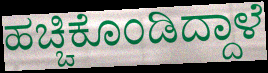
ಹಚ್ಚಿಕೊಂಡಿದ್ದಾಳೆ